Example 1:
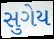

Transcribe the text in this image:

સુગેય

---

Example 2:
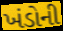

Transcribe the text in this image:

ખંડોની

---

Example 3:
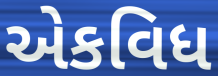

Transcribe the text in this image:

એકવિધ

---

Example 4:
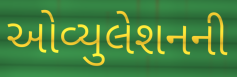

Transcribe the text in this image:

ઓવ્યુલેશનની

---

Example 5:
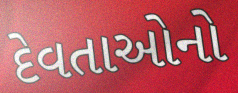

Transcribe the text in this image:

દેવતાઓનો